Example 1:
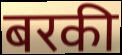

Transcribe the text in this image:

बरकी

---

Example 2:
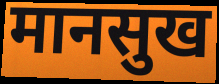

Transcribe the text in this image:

मानसुख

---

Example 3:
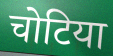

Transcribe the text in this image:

चोटिया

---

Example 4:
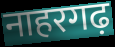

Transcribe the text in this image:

नाहरगढ़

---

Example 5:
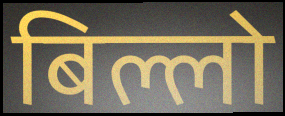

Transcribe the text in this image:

बिल्लो